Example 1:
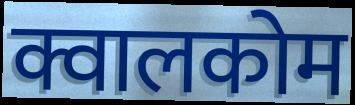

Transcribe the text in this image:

क्वालकोम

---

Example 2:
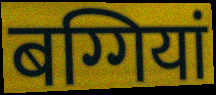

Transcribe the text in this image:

बग्गियां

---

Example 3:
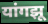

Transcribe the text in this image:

यांगझू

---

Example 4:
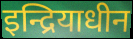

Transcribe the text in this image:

इन्द्रियाधीन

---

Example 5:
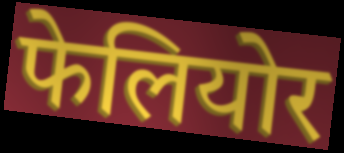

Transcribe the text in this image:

फेलियोर